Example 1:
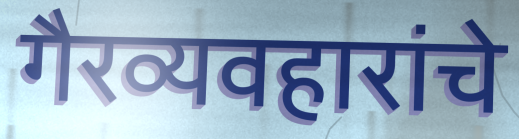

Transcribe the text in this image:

गैरव्यवहारांचे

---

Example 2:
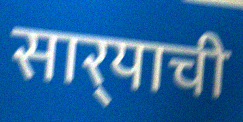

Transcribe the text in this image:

सार्‍याची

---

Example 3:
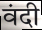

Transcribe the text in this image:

वंदी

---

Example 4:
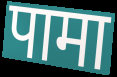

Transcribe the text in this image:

पामा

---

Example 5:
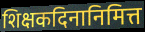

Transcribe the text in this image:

शिक्षकदिनानिमित्त